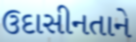
ઉદાસીનતાને